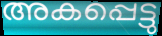
അകപ്പെട്ടു